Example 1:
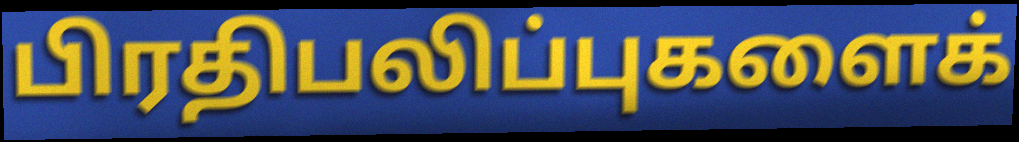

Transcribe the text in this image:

பிரதிபலிப்புகளைக்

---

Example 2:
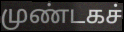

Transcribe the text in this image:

முண்டகச்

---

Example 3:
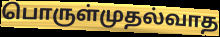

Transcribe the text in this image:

பொருள்முதல்வாத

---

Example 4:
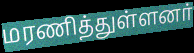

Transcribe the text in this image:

மரணித்துள்ளனர்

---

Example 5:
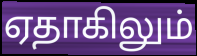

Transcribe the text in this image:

ஏதாகிலும்